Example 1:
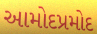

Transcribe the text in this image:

આમોદપ્રમોદ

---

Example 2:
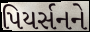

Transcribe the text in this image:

પિયર્સનને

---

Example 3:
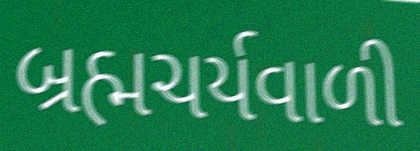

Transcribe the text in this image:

બ્રહ્મચર્યવાળી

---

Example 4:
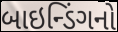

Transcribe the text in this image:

બાઇન્ડિંગનો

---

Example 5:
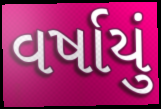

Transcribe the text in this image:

વર્ષાયું